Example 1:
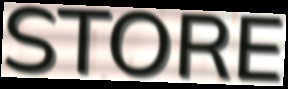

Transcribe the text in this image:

STORE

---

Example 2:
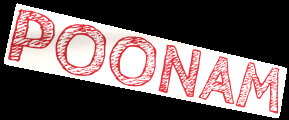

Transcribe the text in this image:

POONAM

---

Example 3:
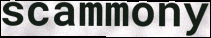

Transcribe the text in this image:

scammony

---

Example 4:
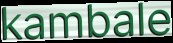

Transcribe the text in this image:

kambale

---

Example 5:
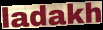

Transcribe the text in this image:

ladakh